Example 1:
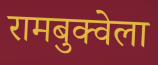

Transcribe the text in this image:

रामबुक्वेला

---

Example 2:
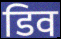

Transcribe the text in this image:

डिव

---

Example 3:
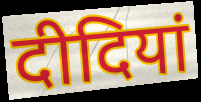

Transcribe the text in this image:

दीदियां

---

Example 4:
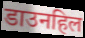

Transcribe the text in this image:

डाउनहिल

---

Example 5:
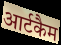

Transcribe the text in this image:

आर्टकैम